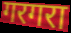
गरगरा